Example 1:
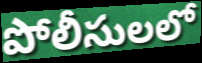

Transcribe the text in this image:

పోలీసులలో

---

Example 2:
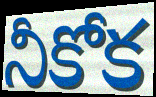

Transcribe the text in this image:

నీకోక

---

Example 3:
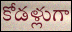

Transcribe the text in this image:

కోడళ్లుగా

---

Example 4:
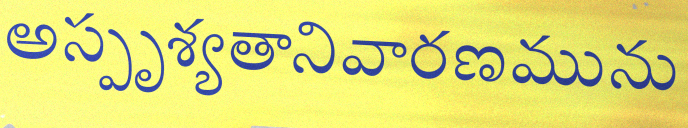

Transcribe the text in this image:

అస్పృశ్యతానివారణమును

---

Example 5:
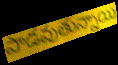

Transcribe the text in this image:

పాడవుతున్నాయి